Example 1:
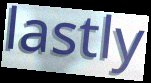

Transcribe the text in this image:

lastly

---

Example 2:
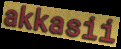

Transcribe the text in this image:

akkasii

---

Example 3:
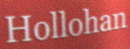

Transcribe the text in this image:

Hollohan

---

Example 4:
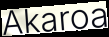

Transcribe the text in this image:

Akaroa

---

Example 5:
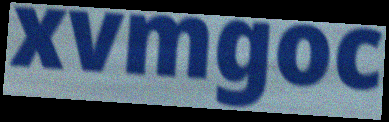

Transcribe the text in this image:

xvmgoc